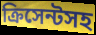
ক্রিসেন্টসহ